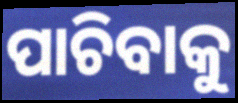
ପାଚିବାକୁ